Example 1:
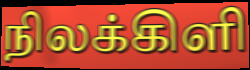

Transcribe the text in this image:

நிலக்கிளி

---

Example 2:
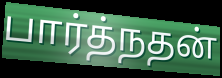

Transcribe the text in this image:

பார்த்நதன்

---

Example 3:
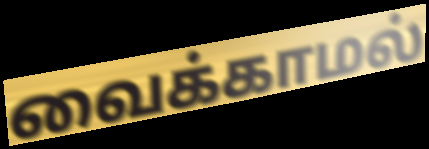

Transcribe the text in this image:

வைக்காமல்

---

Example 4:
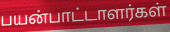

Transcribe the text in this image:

பயன்பாட்டாளர்கள்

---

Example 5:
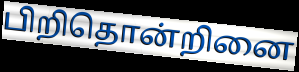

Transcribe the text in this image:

பிறிதொன்றினை